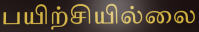
பயிற்சியில்லை